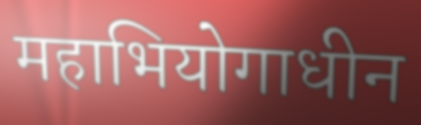
महाभियोगाधीन